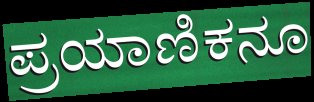
ಪ್ರಯಾಣಿಕನೂ